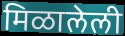
मिळालेली